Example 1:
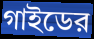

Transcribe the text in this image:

গাইডের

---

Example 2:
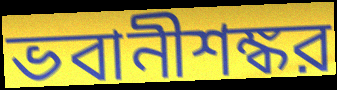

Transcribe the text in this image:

ভবানীশঙ্কর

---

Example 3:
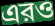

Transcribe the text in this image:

এরও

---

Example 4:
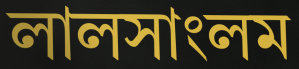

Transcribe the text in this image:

লালসাংলম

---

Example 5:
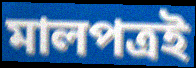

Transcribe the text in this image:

মালপত্রই